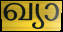
ഖ്യാ